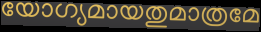
യോഗ്യമായതുമാത്രമേ